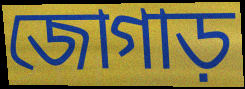
জোগাড়